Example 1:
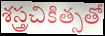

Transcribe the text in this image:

శస్త్రచికిత్సతో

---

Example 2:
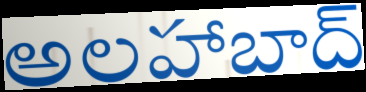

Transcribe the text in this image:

అలహాబాద్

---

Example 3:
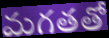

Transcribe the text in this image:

మగతతో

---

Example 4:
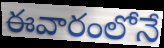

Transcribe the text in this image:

ఈవారంలోనే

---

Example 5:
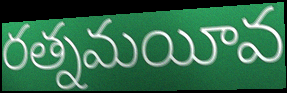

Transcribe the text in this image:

రత్నమయీవ